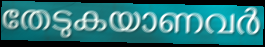
തേടുകയാണവർ